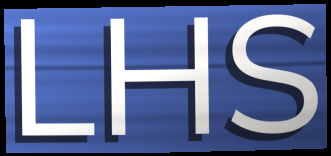
LHS